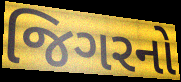
જિગરનો